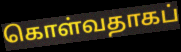
கொள்வதாகப்